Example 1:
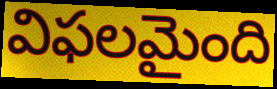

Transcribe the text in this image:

విఫలమైంది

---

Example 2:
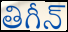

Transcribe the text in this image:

తిగీన్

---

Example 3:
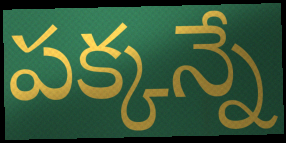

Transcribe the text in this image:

పక్కన్నే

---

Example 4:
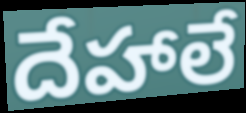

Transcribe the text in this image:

దేహాలే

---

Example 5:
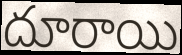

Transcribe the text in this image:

దూరాయి